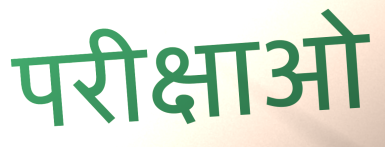
परीक्षाओ